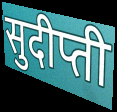
सुदीप्ती